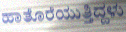
ಹಾತೊರೆಯುತ್ತಿದ್ದಳು